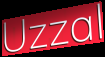
Uzzal